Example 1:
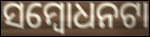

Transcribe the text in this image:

ସମ୍ବୋଧନଟା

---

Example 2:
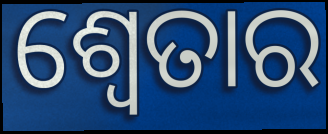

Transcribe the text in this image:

ଶ୍ୱେତାର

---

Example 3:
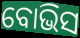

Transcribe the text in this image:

ବୋଭିସ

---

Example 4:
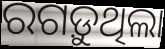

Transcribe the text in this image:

ରଗଡ଼ୁଥିଲା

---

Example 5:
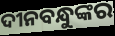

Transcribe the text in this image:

ଦୀନବନ୍ଧୁଙ୍କର